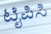
ಟೈಪಿಸಿ